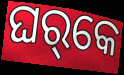
ଘର୍‌କେ